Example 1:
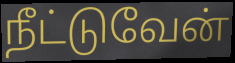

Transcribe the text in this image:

நீட்டுவேன்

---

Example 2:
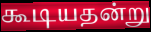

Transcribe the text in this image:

கூடியதன்று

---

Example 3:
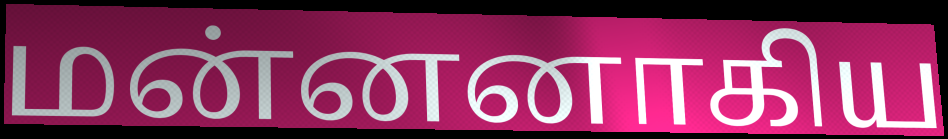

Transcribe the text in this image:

மன்னனாகிய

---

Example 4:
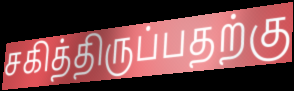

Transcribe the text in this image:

சகித்திருப்பதற்கு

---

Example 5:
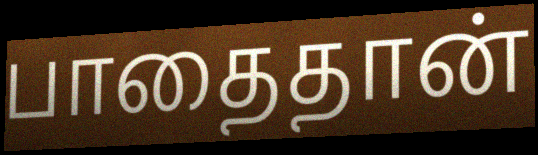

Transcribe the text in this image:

பாதைதான்